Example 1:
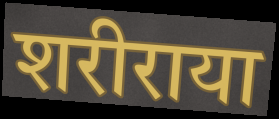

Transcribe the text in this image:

शरीराया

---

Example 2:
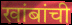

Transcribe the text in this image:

खांबांची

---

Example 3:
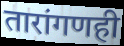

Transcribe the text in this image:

तारांगणही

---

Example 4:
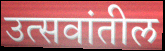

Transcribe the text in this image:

उत्सवांतील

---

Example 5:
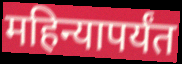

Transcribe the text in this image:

महिन्यापर्यंत